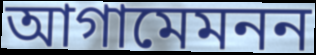
আগামেমনন